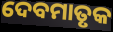
ଦେବମାତୃକ